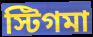
স্টিগমা